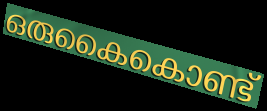
ഒരുകൈകൊണ്ട്